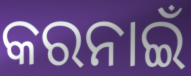
କରନାଇଁ